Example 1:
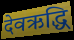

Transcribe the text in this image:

देवऋद्धि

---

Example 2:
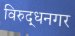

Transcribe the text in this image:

विरुद्धनगर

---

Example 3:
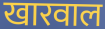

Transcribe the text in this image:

खारवाल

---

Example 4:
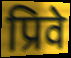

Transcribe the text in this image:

प्रिवे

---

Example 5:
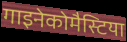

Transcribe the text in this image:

गाइनेकोमैस्टिया